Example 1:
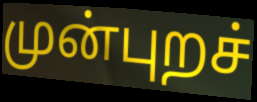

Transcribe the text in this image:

முன்புறச்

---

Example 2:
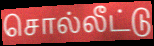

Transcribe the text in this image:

சொல்லீட்டு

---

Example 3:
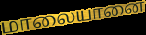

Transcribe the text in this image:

மாலையானை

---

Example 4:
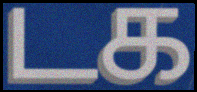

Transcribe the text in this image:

டக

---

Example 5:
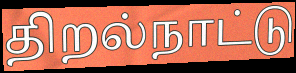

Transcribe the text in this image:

திறல்நாட்டு